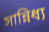
সান্নিধ্য